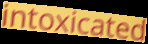
intoxicated